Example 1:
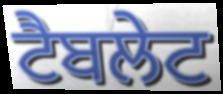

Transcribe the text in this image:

ਟੈਬਲੇਟ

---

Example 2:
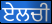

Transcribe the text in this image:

ਏਲਚੀ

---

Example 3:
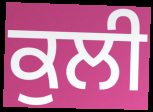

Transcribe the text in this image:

ਕੁਲੀ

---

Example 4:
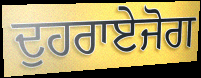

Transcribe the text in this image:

ਦੁਹਰਾਏਜੋਗ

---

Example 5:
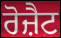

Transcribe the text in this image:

ਰੋਜ਼ੈਟ